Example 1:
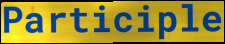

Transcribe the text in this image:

Participle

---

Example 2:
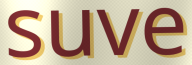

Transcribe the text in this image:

suve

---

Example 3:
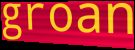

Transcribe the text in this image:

groan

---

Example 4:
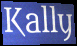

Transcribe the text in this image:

Kally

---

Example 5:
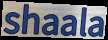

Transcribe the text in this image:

shaala